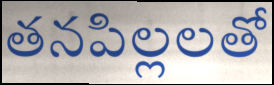
తనపిల్లలతో